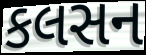
કલસન